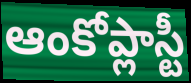
ఆంకోప్లాస్టీ